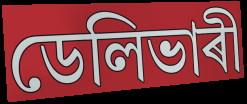
ডেলিভাৰী